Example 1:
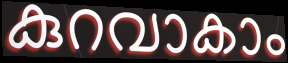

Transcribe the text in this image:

കുറവാകാം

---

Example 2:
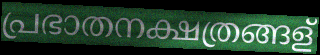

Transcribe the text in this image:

പ്രഭാതനക്ഷത്രങ്ങള്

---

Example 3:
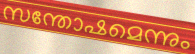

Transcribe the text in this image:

സന്തോഷമെന്നും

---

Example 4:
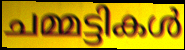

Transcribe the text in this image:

ചമ്മട്ടികൾ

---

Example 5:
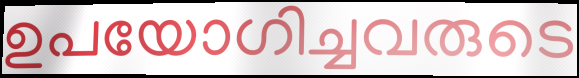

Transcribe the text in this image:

ഉപയോഗിച്ചവരുടെ